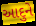
આદુને